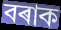
বৰাক